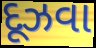
દૂઝવા